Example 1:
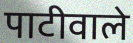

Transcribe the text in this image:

पाटीवाले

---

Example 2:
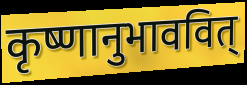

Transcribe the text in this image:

कृष्णानुभाववित्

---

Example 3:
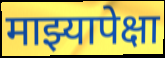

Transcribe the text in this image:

माझ्यापेक्षा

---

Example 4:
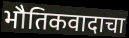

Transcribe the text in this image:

भौतिकवादाचा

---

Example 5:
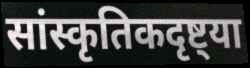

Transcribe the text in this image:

सांस्कृतिकदृष्ट्या